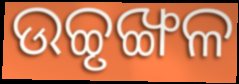
ଉଚ୍ଚୃଙ୍ଖଳ